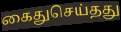
கைதுசெய்தது